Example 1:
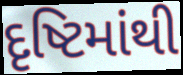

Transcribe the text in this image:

દૃષ્ટિમાંથી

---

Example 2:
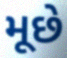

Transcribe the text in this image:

મૂછે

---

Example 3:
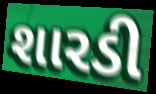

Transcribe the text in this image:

શારડી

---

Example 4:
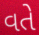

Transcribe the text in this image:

વતે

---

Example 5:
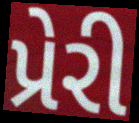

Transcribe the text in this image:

પ્રેરી